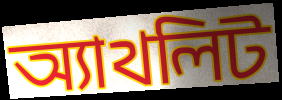
অ্যাথলিট